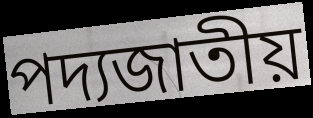
পদ্যজাতীয়